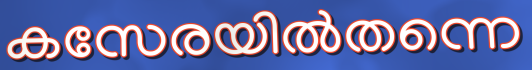
കസേരയിൽതന്നെ